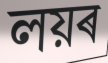
লয়ৰ